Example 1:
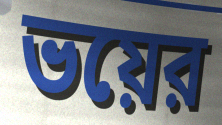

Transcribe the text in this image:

ভয়ের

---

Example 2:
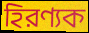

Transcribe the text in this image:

হিরণ্যক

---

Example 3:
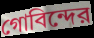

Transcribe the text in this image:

গোবিন্দের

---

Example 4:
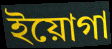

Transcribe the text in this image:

ইয়োগা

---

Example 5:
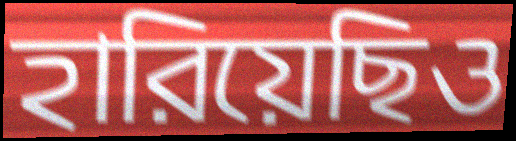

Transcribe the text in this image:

হারিয়েছিও